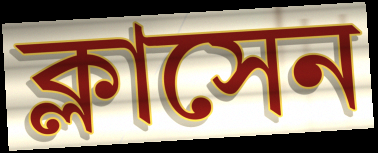
ক্লাসেন